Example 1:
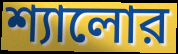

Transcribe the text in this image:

শ্যালোর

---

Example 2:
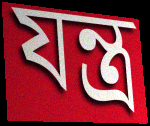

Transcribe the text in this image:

যন্ত্র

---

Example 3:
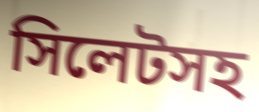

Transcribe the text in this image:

সিলেটসহ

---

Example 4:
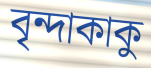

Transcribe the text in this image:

বৃন্দাকাকু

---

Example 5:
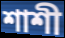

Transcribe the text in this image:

শাশী